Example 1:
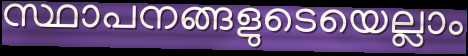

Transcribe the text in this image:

സ്ഥാപനങ്ങളുടെയെല്ലാം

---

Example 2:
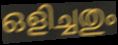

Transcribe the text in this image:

ഒളിച്ചതും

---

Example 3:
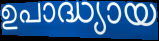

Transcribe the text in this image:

ഉപാദ്ധ്യായ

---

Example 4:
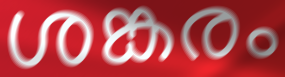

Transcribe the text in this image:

ശങ്കരം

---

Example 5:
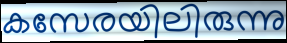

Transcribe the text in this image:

കസേരയിലിരുന്നു